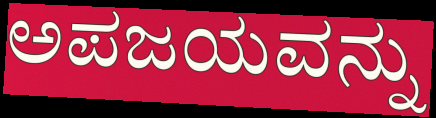
ಅಪಜಯವನ್ನು